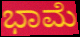
ಭಾಮೆ